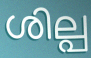
ശില്പ